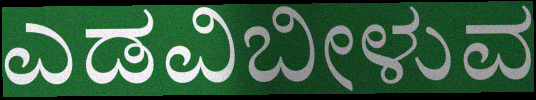
ಎಡವಿಬೀಳುವ